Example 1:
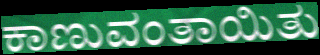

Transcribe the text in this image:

ಕಾಣುವಂತಾಯಿತು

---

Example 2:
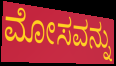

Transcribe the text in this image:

ಮೋಸವನ್ನು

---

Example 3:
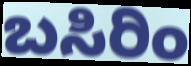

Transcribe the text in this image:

ಬಸಿರಿಂ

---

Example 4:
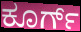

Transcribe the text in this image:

ಕೂರ್ಗ್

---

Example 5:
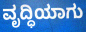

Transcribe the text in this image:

ವೃದ್ಧಿಯಾಗು